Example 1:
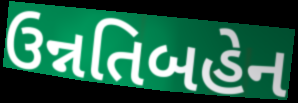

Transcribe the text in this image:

ઉન્નતિબહેન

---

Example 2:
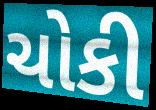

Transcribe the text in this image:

ચોકી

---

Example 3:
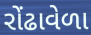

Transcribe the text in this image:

રોંઢાવેળા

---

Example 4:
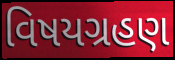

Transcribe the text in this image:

વિષયગ્રહણ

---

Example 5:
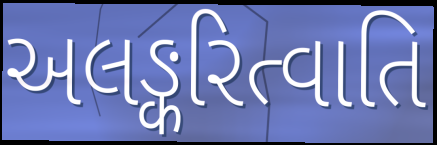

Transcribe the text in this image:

અલઙ્કરિત્વાતિ